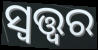
ସ୍ୱତ୍ତ୍ୱର